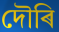
দৌৰি